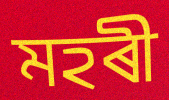
মহৰী